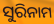
ସୁରିନାମ